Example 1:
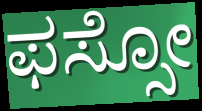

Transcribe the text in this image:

ಫಸ್ಸೋ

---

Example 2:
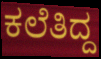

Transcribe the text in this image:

ಕಲೆತಿದ್ದ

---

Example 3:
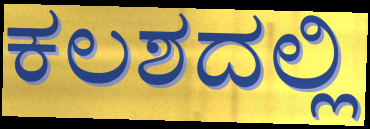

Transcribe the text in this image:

ಕಲಶದಲ್ಲಿ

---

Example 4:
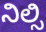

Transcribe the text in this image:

ನಿಲ್ಸಿ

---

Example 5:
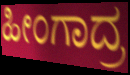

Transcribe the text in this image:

ಹೀಂಗಾದ್ರ